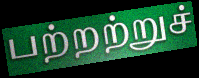
பற்றற்றுச்